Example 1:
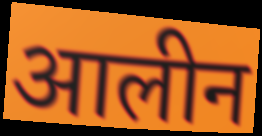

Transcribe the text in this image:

आलीन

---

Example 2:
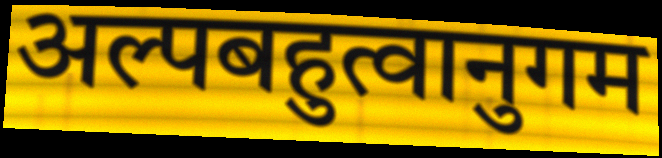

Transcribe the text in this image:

अल्पबहुत्वानुगम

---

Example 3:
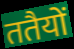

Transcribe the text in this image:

ततैयों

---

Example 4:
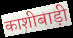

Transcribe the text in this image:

काशीबाड़ी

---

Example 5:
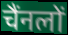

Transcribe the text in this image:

चैंनलों